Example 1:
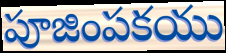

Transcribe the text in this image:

పూజింపకయు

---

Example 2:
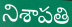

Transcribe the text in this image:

నిశాపతి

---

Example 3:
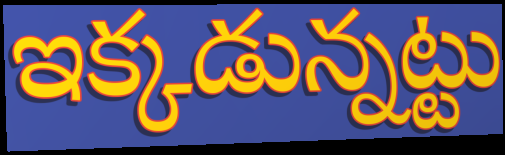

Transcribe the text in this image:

ఇక్కడున్నట్టు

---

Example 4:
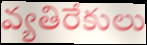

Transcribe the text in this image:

వ్యతిరేకులు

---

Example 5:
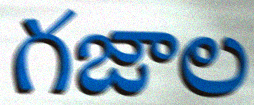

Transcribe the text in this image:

గజాల